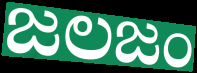
జలజం